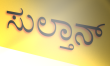
ಸುಲ್ತಾನ್